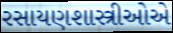
રસાયણશાસ્ત્રીઓએ